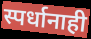
स्पर्धानाही